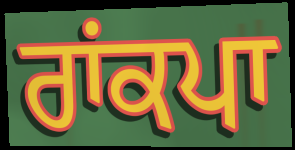
ਰਾਂਕਪਾ